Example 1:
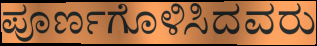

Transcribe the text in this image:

ಪೂರ್ಣಗೊಳಿಸಿದವರು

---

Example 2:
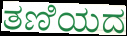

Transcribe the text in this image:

ತಣಿಯದ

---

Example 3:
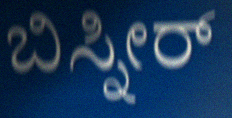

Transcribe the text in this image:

ಬಿಸ್ನೀರ್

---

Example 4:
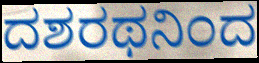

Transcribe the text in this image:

ದಶರಥನಿಂದ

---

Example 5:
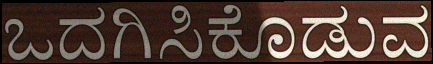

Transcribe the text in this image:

ಒದಗಿಸಿಕೊಡುವ